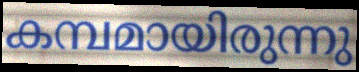
കമ്പമായിരുന്നു